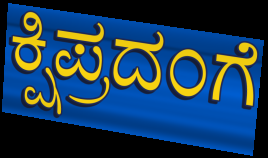
ಕ್ಷಿಪ್ರದಂಗೆ